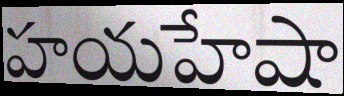
హయహేషా